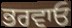
ਭਰਵਾਓ